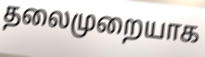
தலைமுறையாக